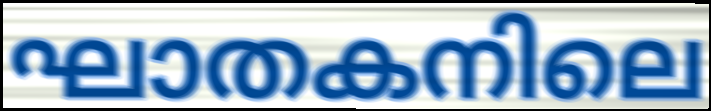
ഘാതകനിലെ